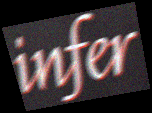
infer